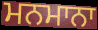
ਮਨਮਾਨਾ